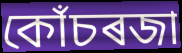
কোঁচৰজা